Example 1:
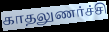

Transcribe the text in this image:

காதலுணர்ச்சி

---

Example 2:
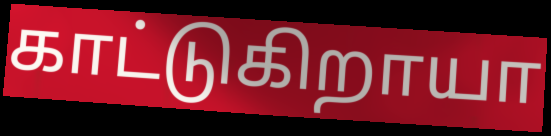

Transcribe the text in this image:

காட்டுகிறாயா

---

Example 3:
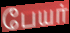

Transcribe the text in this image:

பேயர்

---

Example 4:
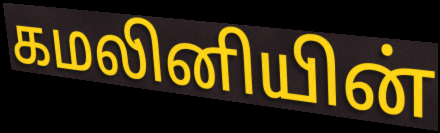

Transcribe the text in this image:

கமலினியின்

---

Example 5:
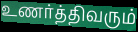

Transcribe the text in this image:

உணர்த்திவரும்